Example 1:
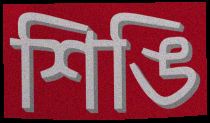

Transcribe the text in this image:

শিঙি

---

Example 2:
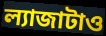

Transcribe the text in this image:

ল্যাজাটাও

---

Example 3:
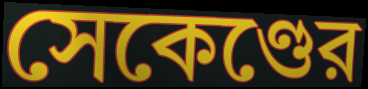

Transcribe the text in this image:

সেকেণ্ডের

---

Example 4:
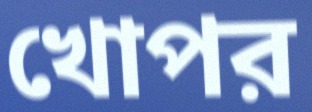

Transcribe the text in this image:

খোপর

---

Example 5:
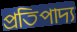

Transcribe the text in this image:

প্রতিপাদ্য